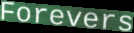
Forevers